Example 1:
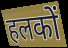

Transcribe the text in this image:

हलकों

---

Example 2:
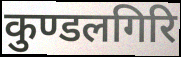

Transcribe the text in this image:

कुण्डलगिरि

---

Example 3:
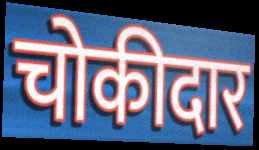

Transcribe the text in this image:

चोकीदार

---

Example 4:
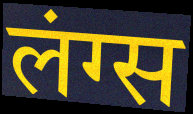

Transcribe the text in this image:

लंग्स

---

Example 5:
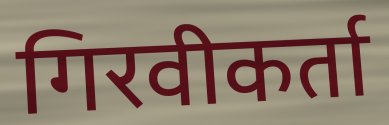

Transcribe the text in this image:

गिरवीकर्ता